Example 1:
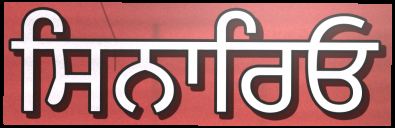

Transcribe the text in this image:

ਸਿਨਾਰਿਓ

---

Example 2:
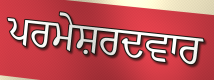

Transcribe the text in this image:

ਪਰਮੇਸ਼ਰਦਵਾਰ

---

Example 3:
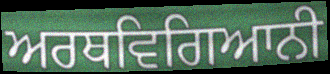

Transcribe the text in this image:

ਅਰਥਵਿਗਿਆਨੀ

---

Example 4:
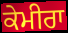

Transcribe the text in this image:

ਕੇਮੀਰਾ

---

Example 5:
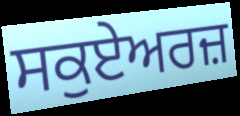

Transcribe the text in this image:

ਸਕੁਏਅਰਜ਼